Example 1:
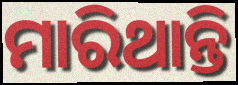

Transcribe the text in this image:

ମାରିଥାନ୍ତି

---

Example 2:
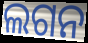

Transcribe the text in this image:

ଲଗନ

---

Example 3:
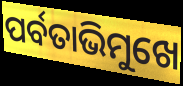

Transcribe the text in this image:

ପର୍ବତାଭିମୁଖେ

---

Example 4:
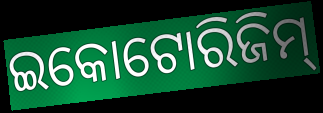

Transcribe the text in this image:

ଇକୋଟୋରିଜିମ୍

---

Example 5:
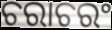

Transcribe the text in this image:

ଚରାଚରଂ